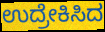
ಉದ್ರೇಕಿಸಿದ